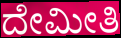
ದೇಮೀತಿ